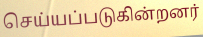
செய்யப்படுகின்றனர்